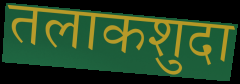
तलाकशुदा